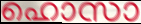
ഹൊസാ